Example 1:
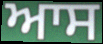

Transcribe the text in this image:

ਆਸ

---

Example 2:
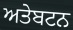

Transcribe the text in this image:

ਅਤੇਬਟਨ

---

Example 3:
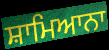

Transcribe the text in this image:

ਸ਼ਾਮਿਆਨਾ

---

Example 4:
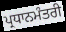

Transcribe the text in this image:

ਪ੍ਰਧਾਨਮੰਤਰੀ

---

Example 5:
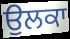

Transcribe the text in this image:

ਉਲਕਾ